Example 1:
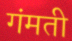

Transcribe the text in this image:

गंमती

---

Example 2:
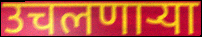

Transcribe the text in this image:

उचलणाऱ्या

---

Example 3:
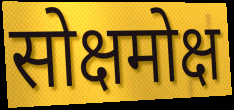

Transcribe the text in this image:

सोक्षमोक्ष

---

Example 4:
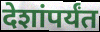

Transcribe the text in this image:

देशांपर्यंत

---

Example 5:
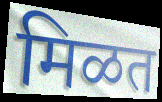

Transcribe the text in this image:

मिळत